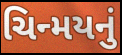
ચિન્મયનું